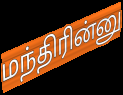
மந்திரின்னு